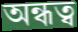
অন্ধত্ব